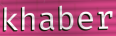
khaber